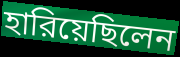
হারিয়েছিলেন